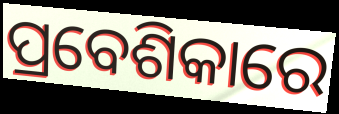
ପ୍ରବେଶିକାରେ